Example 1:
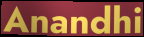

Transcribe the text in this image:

Anandhi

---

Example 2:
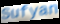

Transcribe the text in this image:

Sufyan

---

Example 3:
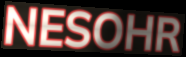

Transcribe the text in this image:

NESOHR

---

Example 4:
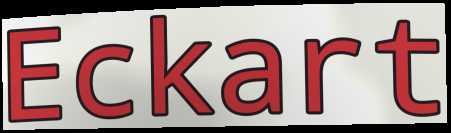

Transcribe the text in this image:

Eckart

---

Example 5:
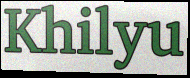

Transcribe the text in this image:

Khilyu